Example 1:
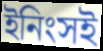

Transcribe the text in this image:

ইনিংসই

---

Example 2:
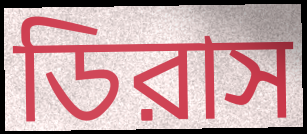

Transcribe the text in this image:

ডিরাস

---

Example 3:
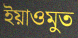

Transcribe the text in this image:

ইয়াওমুত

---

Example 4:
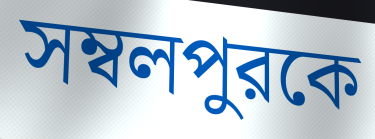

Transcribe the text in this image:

সম্বলপুরকে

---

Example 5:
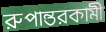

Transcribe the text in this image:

রুপান্তরকামী